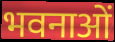
भवनाओं